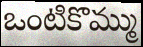
ఒంటికొమ్ము